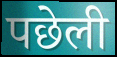
पछेली